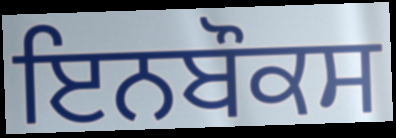
ਇਨਬੌਕਸ